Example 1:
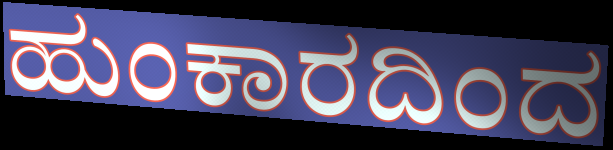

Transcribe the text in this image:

ಹುಂಕಾರದಿಂದ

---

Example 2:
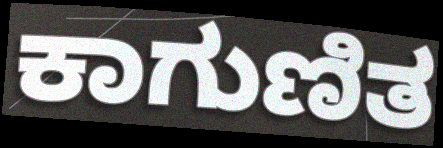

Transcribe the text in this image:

ಕಾಗುಣಿತ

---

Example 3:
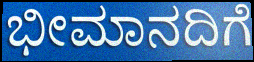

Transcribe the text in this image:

ಭೀಮಾನದಿಗೆ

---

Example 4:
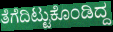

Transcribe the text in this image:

ತೆಗೆದಿಟ್ಟುಕೊಂಡಿದ್ದ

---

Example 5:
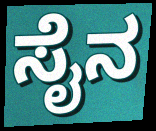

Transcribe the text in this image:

ಸೈನ